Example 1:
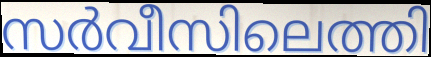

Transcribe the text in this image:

സർവീസിലെത്തി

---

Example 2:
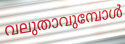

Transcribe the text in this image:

വലുതാവുമ്പോൾ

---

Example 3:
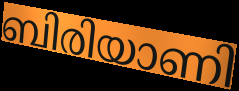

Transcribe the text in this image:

ബിരിയാണി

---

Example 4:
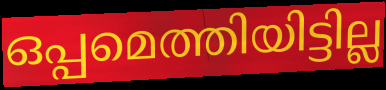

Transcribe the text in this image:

ഒപ്പമെത്തിയിട്ടില്ല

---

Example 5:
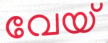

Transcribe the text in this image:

വേയ്